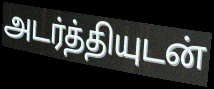
அடர்த்தியுடன்